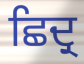
ਛਿਦ੍ਰ